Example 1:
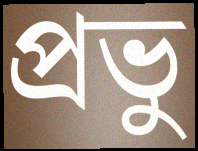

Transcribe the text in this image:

প্রভু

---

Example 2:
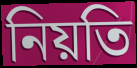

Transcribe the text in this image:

নিয়তি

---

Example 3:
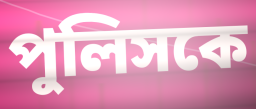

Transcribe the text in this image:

পুলিসকে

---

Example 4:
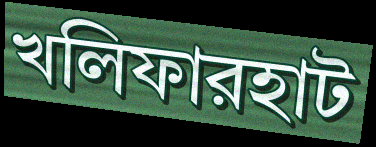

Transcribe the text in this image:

খলিফারহাট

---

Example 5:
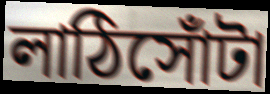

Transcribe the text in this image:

লাঠিসোঁটা